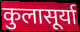
कुलासूर्या